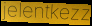
jelentkezz